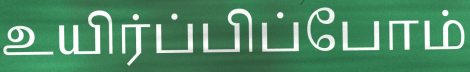
உயிர்ப்பிப்போம்